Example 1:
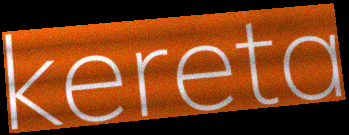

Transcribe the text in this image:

kereta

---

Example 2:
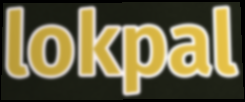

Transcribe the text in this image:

lokpal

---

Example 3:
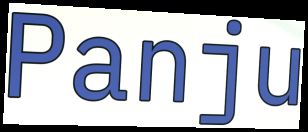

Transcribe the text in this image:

Panju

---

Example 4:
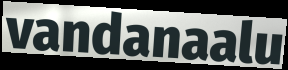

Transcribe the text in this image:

vandanaalu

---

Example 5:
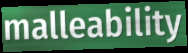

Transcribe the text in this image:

malleability